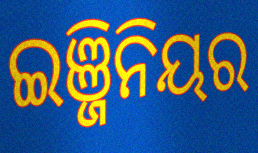
ଇଞ୍ଜିନିୟର